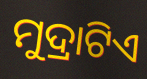
ମୁଦ୍ରାଟିଏ